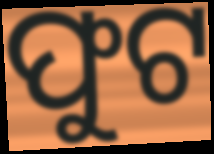
ଫୁଟ